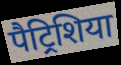
पैट्रिशिया